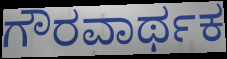
ಗೌರವಾರ್ಥಕ